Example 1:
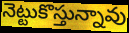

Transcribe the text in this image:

నెట్టుకొస్తున్నావు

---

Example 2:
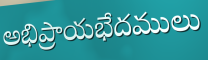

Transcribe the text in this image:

అభిప్రాయభేదములు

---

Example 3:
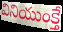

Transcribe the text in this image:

వినియుంక్తే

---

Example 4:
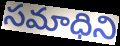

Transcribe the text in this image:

సమాధిని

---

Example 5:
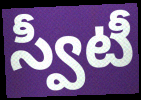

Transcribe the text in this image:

స్వీటీ